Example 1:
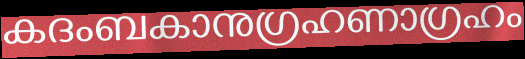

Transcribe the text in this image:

കദംബകാനുഗ്രഹണാഗ്രഹം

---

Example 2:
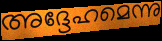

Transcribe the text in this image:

അദ്ദേഹമെന്നു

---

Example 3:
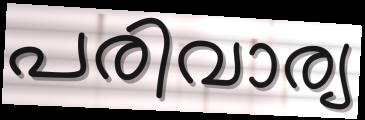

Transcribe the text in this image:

പരിവാര്യ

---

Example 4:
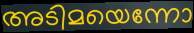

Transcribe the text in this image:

അടിമയെന്നോ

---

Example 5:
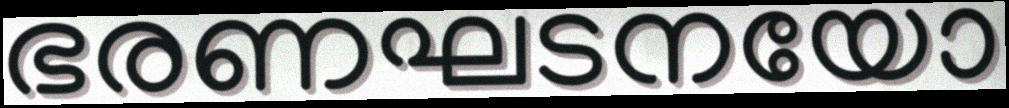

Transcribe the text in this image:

ഭരണഘടനയോ